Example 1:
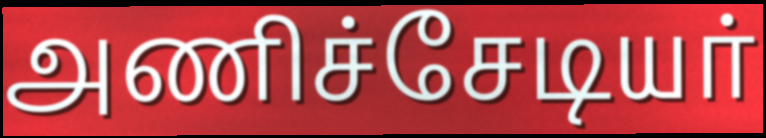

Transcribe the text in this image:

அணிச்சேடியர்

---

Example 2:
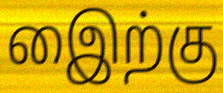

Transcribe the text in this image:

இைற்கு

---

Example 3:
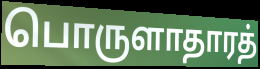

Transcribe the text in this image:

பொருளாதாரத்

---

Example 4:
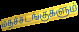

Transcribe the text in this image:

மதச்சடங்குகளும்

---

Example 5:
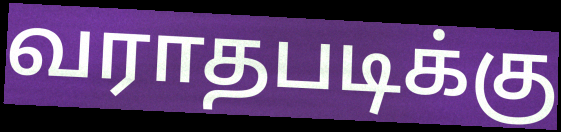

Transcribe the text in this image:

வராதபடிக்கு